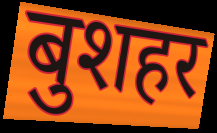
बुशहर